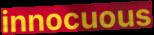
innocuous